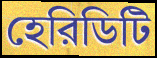
হেরিডিটি